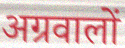
अग्रवालों